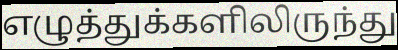
எழுத்துக்களிலிருந்து